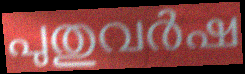
പുതുവർഷ